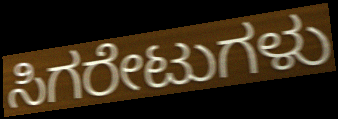
ಸಿಗರೇಟುಗಳು